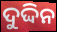
ଦୁଦ୍ଦିନ